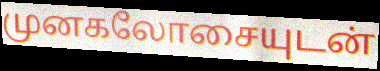
முனகலோசையுடன்